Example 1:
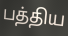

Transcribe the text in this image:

பத்திய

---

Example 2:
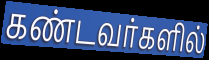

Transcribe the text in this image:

கண்டவர்களில்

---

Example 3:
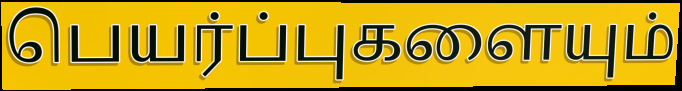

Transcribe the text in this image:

பெயர்ப்புகளையும்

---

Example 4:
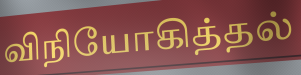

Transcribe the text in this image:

விநியோகித்தல்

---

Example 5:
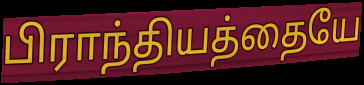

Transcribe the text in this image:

பிராந்தியத்தையே